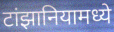
टांझानियामध्ये